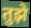
तुझे